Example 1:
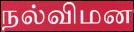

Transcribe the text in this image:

நல்விமன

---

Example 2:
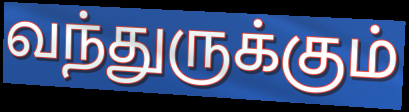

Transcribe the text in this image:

வந்துருக்கும்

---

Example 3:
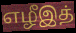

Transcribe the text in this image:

எழீஇத்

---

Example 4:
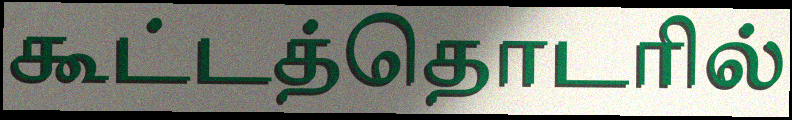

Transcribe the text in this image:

கூட்டத்தொடரில்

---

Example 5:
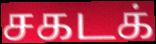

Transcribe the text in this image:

சகடக்